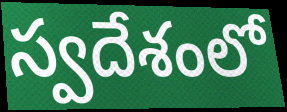
స్వదేశంలో